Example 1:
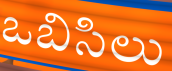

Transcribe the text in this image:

ఒబిసిలు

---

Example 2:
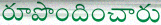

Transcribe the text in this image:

రూపొందించారు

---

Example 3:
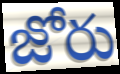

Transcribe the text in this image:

జోరు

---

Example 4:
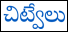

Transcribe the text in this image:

చిట్వేలు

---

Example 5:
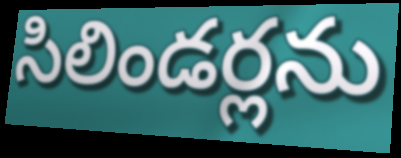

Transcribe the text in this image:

సిలిండర్లను